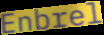
Enbrel